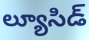
ల్యూసిడ్